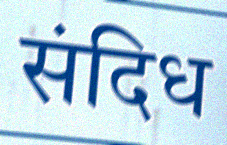
संदिध